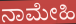
ನಾಮೇಹಿ